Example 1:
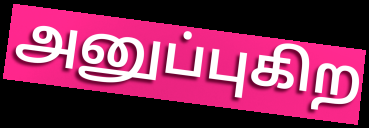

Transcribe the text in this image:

அனுப்புகிற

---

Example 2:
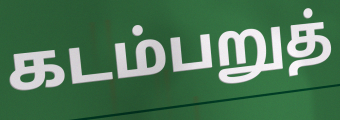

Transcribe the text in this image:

கடம்பறுத்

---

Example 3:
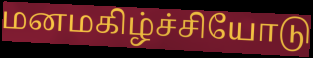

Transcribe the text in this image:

மனமகிழ்ச்சியோடு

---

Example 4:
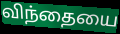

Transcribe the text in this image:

விந்தையை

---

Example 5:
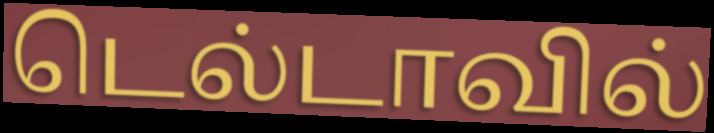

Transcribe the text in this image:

டெல்டாவில்